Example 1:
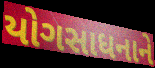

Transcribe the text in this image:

યોગસાધનાને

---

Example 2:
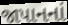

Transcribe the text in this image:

જાપાનનાં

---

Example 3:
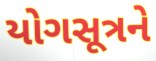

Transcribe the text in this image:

યોગસૂત્રને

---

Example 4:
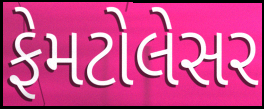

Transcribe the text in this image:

ફેમટોલેસર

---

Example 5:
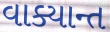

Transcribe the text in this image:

વાક્યાન્ત